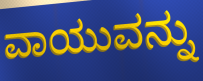
ವಾಯುವನ್ನು